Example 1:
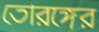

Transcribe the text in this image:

তোরঙ্গের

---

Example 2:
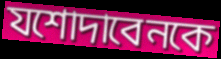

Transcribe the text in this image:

যশোদাবেনকে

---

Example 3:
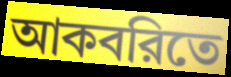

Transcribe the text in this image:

আকবরিতে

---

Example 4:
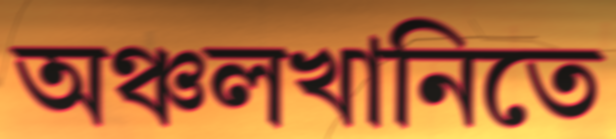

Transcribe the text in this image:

অঞ্চলখানিতে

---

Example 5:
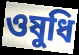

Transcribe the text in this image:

ওষুধি